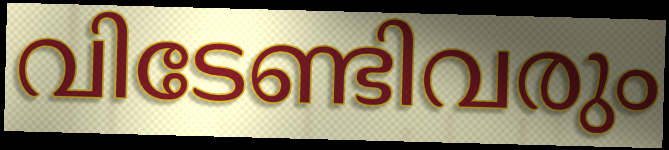
വിടേണ്ടിവരും